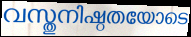
വസ്തുനിഷ്ഠതയോടെ